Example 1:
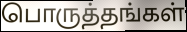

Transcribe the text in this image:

பொருத்தங்கள்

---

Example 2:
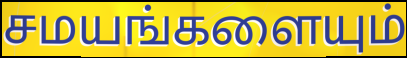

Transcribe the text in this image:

சமயங்களையும்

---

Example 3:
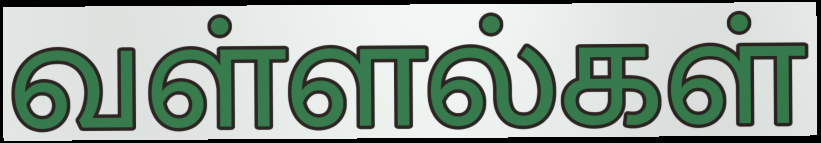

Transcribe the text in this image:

வள்ளல்கள்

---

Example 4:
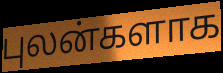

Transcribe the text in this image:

புலன்களாக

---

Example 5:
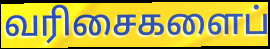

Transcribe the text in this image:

வரிசைகளைப்